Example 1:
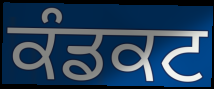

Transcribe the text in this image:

ਕੰਡਕਟ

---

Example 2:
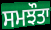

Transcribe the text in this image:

ਸਮਝੌਤਾ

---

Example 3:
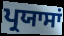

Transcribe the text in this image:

ਪ੍ਰਯਾਸਾਂ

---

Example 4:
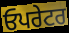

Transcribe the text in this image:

ਓਪਰੇਟਰ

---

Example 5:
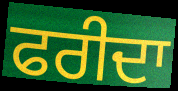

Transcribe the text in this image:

ਫਰੀਦਾ